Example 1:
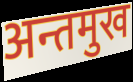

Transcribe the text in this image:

अन्तमुख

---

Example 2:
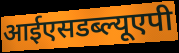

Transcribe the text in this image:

आईएसडब्ल्यूएपी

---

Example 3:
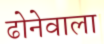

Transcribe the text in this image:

ढोनेवाला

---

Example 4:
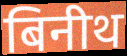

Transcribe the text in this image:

बिनीथ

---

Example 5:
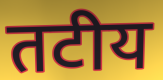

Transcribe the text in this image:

तटीय